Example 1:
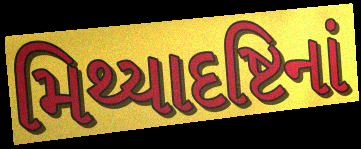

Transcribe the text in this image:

મિથ્યાદષ્ટિનાં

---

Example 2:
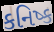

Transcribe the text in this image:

કનિષ્ક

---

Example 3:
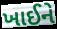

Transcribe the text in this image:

ખાઈને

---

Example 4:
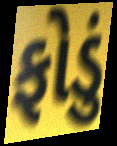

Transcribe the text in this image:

ફોડું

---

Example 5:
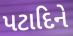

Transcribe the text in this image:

પટાદિને